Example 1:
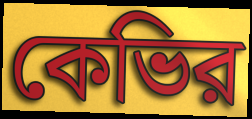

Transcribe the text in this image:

কেভির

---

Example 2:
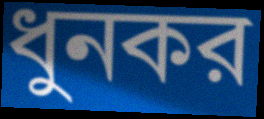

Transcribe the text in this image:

ধুনকর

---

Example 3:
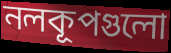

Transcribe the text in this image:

নলকূপগুলো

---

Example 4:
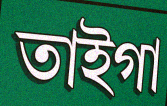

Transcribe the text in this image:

তাইগা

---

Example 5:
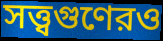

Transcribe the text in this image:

সত্ত্বগুণেরও